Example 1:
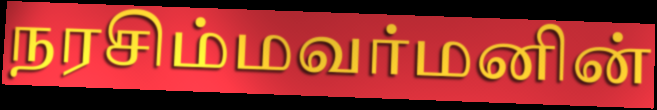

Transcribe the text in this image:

நரசிம்மவர்மனின்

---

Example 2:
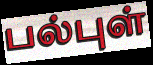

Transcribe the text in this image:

பல்புள்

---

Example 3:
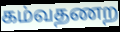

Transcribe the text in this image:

கம்வதணற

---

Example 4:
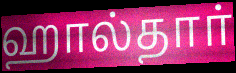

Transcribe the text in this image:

ஹால்தார்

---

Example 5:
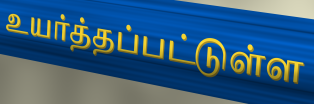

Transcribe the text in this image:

உயர்த்தப்பட்டுள்ள